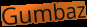
Gumbaz